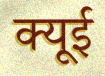
क्यूई